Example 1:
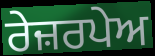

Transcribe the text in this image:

ਰੇਜ਼ਰਪੇਅ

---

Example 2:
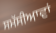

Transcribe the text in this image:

ਸਮੱਸੀਆਵਾਂ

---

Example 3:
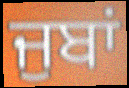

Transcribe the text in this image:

ਜੁਬਾਂ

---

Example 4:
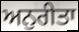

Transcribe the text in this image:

ਅਨੁਰੀਤਾ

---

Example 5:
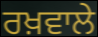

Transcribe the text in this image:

ਰਖ਼ਵਾਲੇ